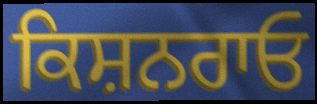
ਕਿਸ਼ਨਰਾਓ